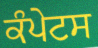
ਕੰਪੇਟਸ